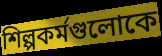
শিল্পকর্মগুলোকে